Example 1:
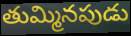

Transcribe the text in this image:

తుమ్మినపుడు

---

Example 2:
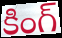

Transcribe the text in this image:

కింగ్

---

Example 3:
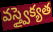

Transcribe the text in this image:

వస్త్వైక్యత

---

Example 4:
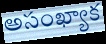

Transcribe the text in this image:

అసంఖ్యాక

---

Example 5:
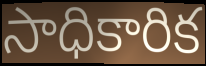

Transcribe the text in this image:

సాధికారిక